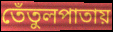
তেঁতুলপাতায়